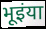
भूइंया